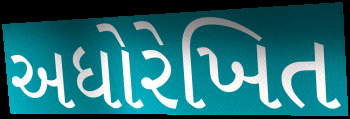
અધોરેખિત